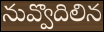
నువ్వొదిలిన